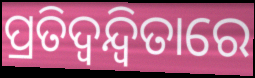
ପ୍ରତିଦ୍ୱନ୍ଦ୍ବିତାରେ